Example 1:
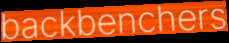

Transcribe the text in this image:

backbenchers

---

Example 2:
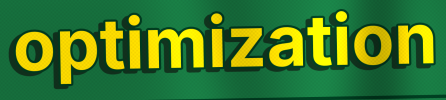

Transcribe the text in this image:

optimization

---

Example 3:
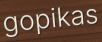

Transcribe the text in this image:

gopikas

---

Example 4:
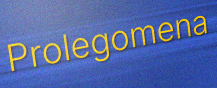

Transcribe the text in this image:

Prolegomena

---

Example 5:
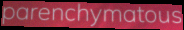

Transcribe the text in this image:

parenchymatous